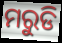
ମରୁଡି